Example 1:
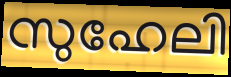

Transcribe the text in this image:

സുഹേലി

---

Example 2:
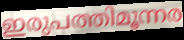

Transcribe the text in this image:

ഇരുപത്തിമൂന്നര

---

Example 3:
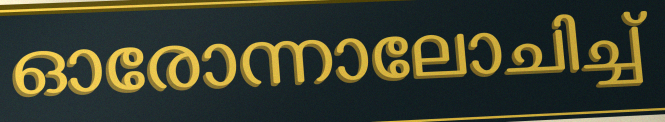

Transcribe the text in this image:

ഓരോന്നാലോചിച്ച്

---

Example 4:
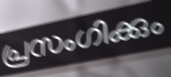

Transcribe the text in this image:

പ്രസംഗിക്കും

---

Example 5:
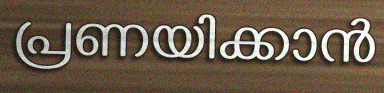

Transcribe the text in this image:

പ്രണയിക്കാൻ